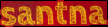
santna